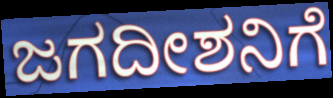
ಜಗದೀಶನಿಗೆ